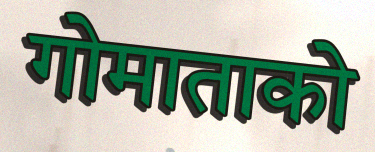
गोमाताको